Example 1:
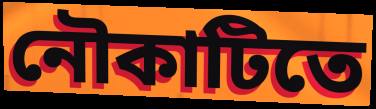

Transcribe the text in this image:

নৌকাটিতে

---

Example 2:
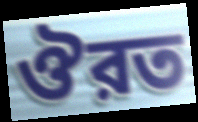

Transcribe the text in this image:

ঔরত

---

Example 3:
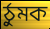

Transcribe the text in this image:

ঠুমক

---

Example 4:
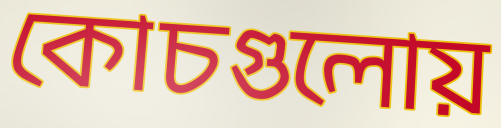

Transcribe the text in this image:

কোচগুলোয়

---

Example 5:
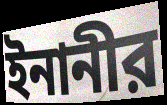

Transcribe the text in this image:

ইনানীর